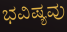
ಭವಿಷ್ಯವು